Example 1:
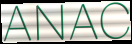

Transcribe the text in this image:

ANAC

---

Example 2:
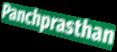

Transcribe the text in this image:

Panchprasthan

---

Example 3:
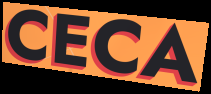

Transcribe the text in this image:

CECA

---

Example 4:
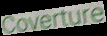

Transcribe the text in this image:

Coverture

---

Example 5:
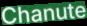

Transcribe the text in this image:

Chanute